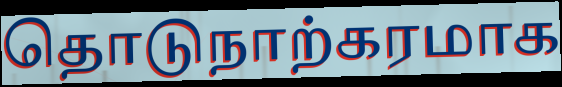
தொடுநாற்கரமாக